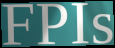
FPIs